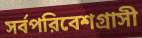
সর্বপরিবেশগ্রাসী